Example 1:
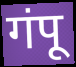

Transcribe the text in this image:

गंपू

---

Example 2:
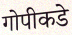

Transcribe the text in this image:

गोपीकडे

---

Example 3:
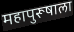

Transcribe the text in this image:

महापुरूषाला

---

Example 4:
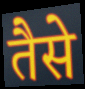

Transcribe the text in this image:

तैसे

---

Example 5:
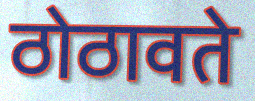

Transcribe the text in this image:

ठोठावते